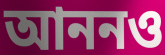
আননও